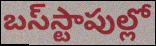
బస్‌స్టాపుల్లో